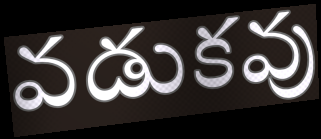
వడుకవు